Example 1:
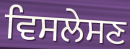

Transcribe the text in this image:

ਵਿਸਲੇਸਣ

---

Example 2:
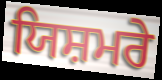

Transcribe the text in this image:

ਯਿਸ਼ਮਰੇ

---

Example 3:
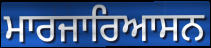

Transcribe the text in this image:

ਮਾਰਜਾਰਿਆਸਨ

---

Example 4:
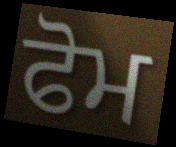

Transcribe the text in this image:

ਫੋਮ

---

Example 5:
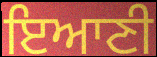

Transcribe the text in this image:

ਇਆਣੀ